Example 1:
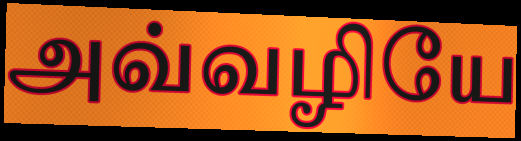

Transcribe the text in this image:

அவ்வழியே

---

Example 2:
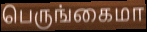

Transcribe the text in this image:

பெருங்கைமா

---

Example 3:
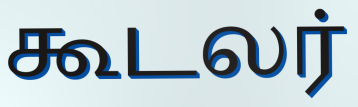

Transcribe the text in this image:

கூடலர்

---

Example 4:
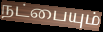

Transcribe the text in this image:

நட்பையும்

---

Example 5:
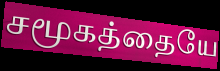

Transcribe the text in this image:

சமூகத்தையே